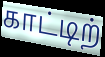
காட்டிற்